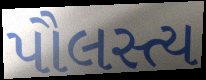
પૌલસ્ત્ય